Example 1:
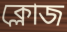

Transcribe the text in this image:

ক্লোজ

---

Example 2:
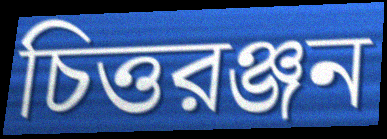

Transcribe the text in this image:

চিত্তরঞ্জন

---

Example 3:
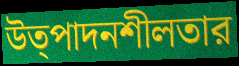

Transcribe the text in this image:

উত্পাদনশীলতার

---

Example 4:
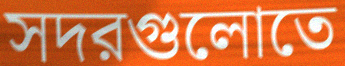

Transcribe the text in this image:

সদরগুলোতে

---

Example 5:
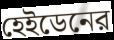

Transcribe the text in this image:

হেইডেনের